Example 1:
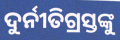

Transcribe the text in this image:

ଦୁର୍ନୀତିଗ୍ରସ୍ତଙ୍କୁ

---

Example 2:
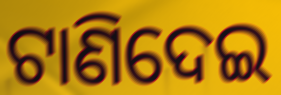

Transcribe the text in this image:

ଟାଣିଦେଇ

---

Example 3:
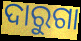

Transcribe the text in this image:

ଦାରୁଗା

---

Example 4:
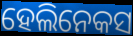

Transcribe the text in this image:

ହେଲିନେକସ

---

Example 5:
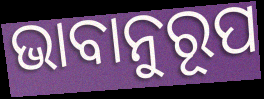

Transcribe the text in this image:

ଭାବାନୁରୂପ